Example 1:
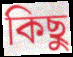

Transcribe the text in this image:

কিছু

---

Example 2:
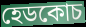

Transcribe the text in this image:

হেডকোচ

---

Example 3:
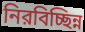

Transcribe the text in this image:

নিরবিচ্ছিন্ন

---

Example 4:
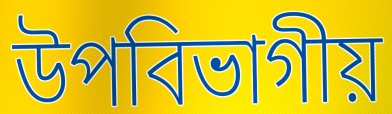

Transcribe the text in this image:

উপবিভাগীয়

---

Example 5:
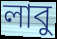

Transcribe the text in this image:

লাবু